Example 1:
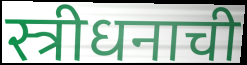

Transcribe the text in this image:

स्त्रीधनाची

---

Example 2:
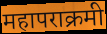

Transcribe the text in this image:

महापराक्रमी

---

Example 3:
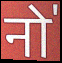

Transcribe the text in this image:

नो॑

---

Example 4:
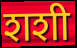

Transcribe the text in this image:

शशी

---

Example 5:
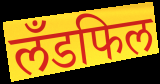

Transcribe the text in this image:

लँडफिल